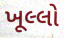
ખૂલ્લો